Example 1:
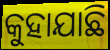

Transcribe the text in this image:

କୁହାଯାଛି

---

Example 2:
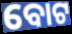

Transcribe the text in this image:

ବୋଟ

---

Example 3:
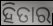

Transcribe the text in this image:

ହିତାର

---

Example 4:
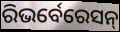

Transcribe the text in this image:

ରିଭର୍ବେରେସନ୍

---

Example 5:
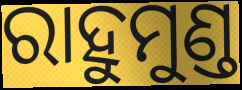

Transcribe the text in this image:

ରାହୁମୁଣ୍ଡ